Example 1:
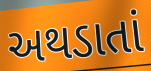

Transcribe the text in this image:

અથડાતાં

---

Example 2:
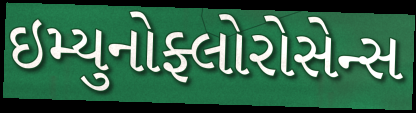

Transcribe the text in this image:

ઇમ્યુનોફ્લોરોસેન્સ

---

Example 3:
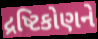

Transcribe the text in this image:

દ્રષ્ટિકોણને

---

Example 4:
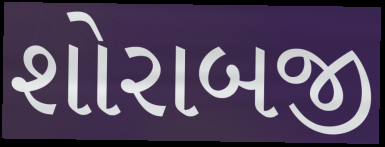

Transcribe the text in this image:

શોરાબજી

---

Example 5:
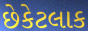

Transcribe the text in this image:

છેકેટલાક